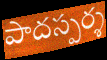
పాదస్పర్శ